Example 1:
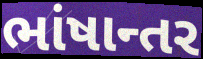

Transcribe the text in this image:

ભાંષાન્તર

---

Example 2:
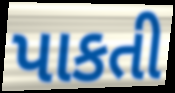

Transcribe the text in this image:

પાકતી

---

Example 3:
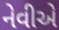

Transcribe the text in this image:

નેવીએ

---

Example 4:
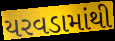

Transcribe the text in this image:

યરવડામાંથી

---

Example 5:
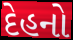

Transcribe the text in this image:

દેહનો